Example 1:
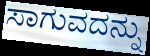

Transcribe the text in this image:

ಸಾಗುವದನ್ನು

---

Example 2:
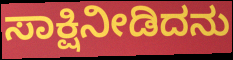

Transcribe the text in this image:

ಸಾಕ್ಷಿನೀಡಿದನು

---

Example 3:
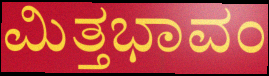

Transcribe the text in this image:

ಮಿತ್ತಭಾವಂ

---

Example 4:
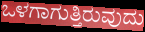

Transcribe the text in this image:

ಒಳಗಾಗುತ್ತಿರುವುದು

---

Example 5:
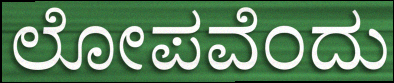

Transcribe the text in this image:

ಲೋಪವೆಂದು